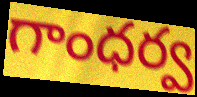
గాంధర్వ